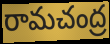
రామచంద్ర